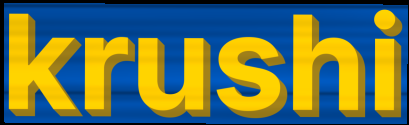
krushi